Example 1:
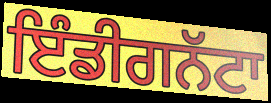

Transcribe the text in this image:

ਇੰਡੀਗਨੱਟਾ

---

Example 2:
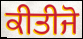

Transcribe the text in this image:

ਕੀਤੀਜੋ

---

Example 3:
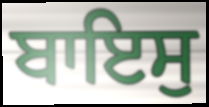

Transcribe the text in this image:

ਬਾਇਸੁ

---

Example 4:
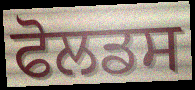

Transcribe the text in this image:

ਫੋਲਡਸ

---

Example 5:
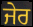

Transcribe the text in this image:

ਜੇਰ